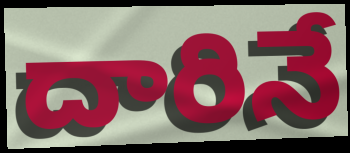
దారినే